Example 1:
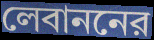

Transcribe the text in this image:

লেবাননের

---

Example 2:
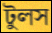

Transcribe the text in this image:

টুলস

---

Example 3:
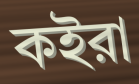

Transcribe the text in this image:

কইরা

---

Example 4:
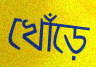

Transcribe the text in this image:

খোঁড়ে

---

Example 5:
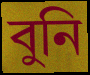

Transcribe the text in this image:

বুনি